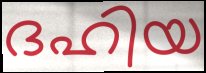
ദഹിയ